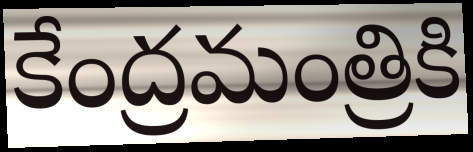
కేంద్రమంత్రికి